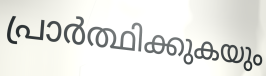
പ്രാർത്ഥിക്കുകയും